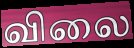
விலை